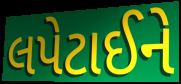
લપેટાઈને